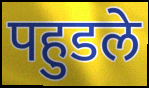
पहुडले